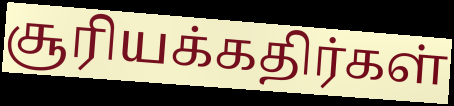
சூரியக்கதிர்கள்